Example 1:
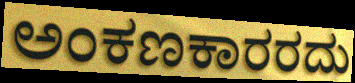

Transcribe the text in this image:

ಅಂಕಣಕಾರರದು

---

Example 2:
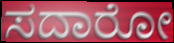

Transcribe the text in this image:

ಸದಾರೋ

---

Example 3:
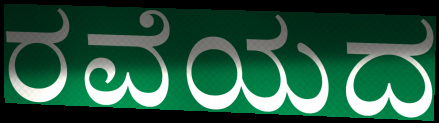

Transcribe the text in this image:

ರವೆಯದ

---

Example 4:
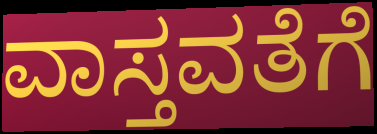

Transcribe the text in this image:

ವಾಸ್ತವತೆಗೆ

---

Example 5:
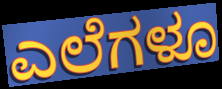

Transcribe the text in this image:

ಎಲೆಗಳೂ